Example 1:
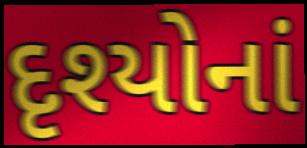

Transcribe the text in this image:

દૃશ્યોનાં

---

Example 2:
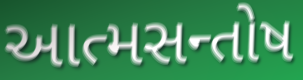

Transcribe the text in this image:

આત્મસન્તોષ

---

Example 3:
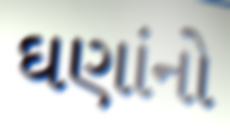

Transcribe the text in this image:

ઘણાંનો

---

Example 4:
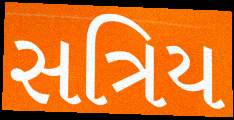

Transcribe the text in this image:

સત્રિય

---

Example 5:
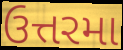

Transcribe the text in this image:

ઉત્તરમા